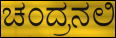
ಚಂದ್ರನಲಿ